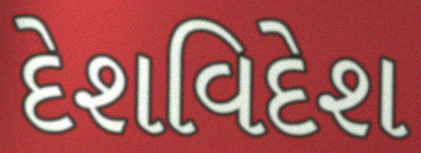
દેશવિદેશ